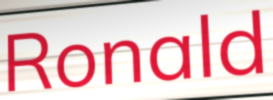
Ronald